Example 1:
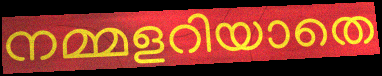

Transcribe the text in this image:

നമ്മളറിയാതെ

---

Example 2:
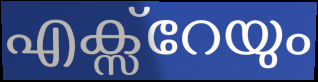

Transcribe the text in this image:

എക്സ്റേയും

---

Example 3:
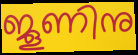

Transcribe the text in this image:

ജൂണിനു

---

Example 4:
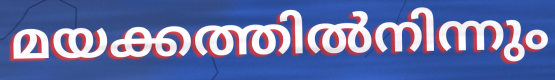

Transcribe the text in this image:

മയക്കത്തിൽനിന്നും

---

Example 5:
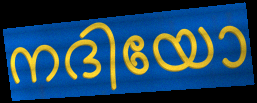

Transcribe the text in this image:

നദിയോ